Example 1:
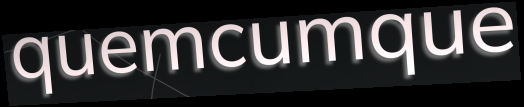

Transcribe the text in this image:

quemcumque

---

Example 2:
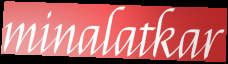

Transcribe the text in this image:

minalatkar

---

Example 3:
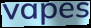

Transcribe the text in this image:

vapes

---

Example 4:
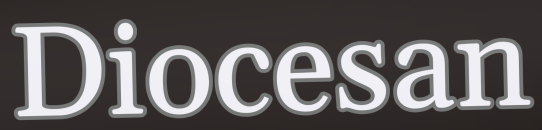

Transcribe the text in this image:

Diocesan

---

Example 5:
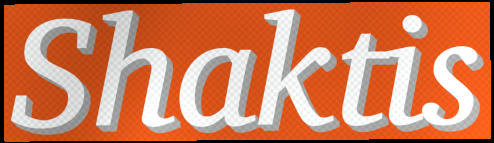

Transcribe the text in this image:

Shaktis